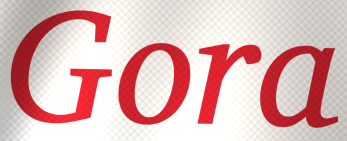
Gora